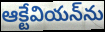
ఆక్టేవియన్‌ను